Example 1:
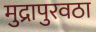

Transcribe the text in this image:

मुद्रापुरवठा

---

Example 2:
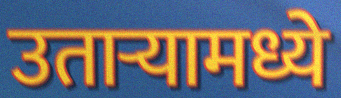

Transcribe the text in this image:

उतार्‍यामध्ये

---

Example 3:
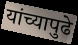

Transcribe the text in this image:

यांच्यापुढे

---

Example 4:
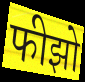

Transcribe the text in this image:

फीझो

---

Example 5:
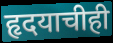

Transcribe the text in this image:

हृदयाचीही